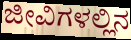
ಜೀವಿಗಳಲ್ಲಿನ